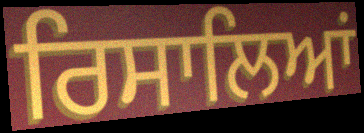
ਰਿਸਾਲਿਆਂ